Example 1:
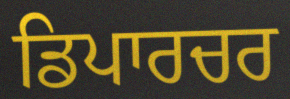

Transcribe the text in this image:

ਡਿਪਾਰਚਰ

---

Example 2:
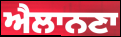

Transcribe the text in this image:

ਐਲਾਨਣਾ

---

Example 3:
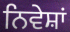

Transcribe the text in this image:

ਨਿਵੇਸ਼ਾਂ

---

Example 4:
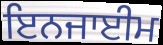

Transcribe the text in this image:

ਇਨਜਾਈਮ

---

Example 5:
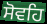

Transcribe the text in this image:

ਸੋਵਹਿ